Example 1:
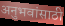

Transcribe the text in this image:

अनुभवांसाठी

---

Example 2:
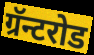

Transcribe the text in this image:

ग्रॅन्टरोड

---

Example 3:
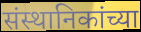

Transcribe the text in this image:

संस्थानिकांच्या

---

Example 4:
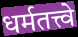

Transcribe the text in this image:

धर्मतत्त्वे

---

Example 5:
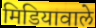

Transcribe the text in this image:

मिडियावाले